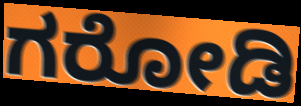
ಗರೋಡಿ